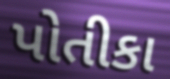
પોતીકા